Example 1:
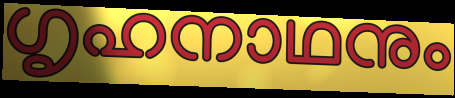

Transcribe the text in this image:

ഗൃഹനാഥനും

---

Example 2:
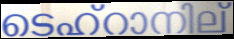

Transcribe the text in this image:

ടെഹ്റാനില്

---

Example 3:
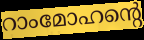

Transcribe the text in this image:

റാംമോഹന്റെ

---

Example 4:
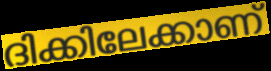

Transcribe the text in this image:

ദിക്കിലേക്കാണ്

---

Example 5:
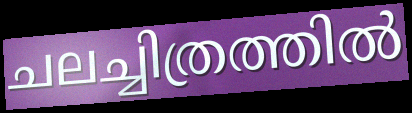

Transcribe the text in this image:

ചലച്ചിത്രത്തിൽ